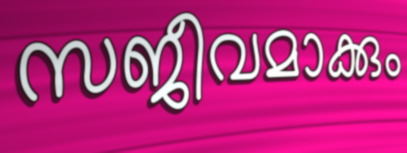
സജീവമാക്കും